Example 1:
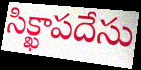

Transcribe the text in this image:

సిక్ఖాపదేసు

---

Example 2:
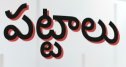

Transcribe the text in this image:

పట్టాలు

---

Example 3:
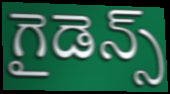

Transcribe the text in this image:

గైడెన్స్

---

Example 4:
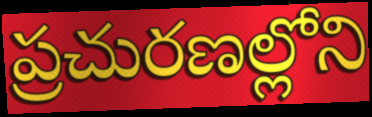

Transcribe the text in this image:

ప్రచురణల్లోని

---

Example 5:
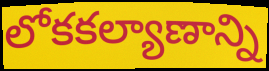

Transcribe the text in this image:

లోకకల్యాణాన్ని